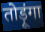
तोड़ूंगा